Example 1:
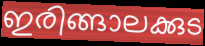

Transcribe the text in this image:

ഇരിങ്ങാലക്കുട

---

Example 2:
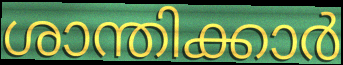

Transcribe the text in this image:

ശാന്തിക്കാർ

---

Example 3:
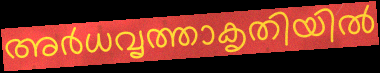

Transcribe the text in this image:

അർധവൃത്താകൃതിയിൽ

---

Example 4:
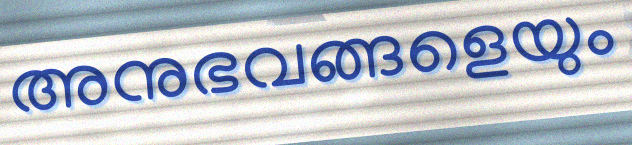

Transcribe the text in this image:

അനുഭവങ്ങളെയും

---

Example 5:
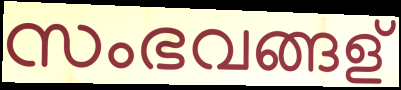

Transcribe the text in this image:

സംഭവങ്ങള്